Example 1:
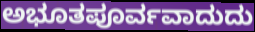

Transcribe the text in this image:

ಅಭೂತಪೂರ್ವವಾದುದು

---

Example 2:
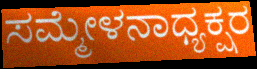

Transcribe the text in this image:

ಸಮ್ಮೇಳನಾಧ್ಯಕ್ಷರ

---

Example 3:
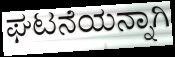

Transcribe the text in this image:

ಘಟನೆಯನ್ನಾಗಿ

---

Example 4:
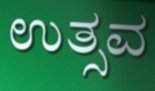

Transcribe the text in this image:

ಉತ್ಸವ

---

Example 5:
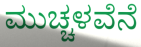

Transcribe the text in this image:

ಮುಚ್ಚಳವೆನೆ